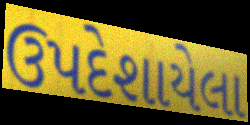
ઉપદેશાયેલા